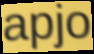
apjo